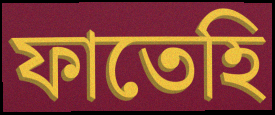
ফাতেহি